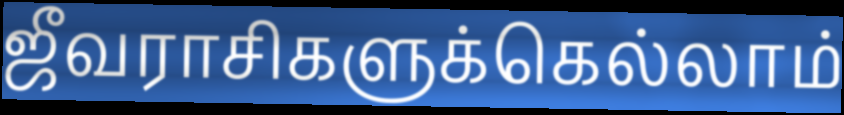
ஜீவராசிகளுக்கெல்லாம்